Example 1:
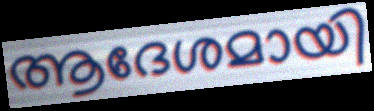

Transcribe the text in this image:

ആദേശമായി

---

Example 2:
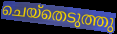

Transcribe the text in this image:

ചെയ്തെടുത്തു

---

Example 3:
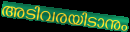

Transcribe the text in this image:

അടിവരയിടാനും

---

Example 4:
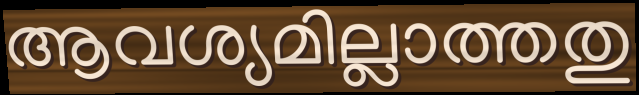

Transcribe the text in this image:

ആവശ്യമില്ലാത്തതു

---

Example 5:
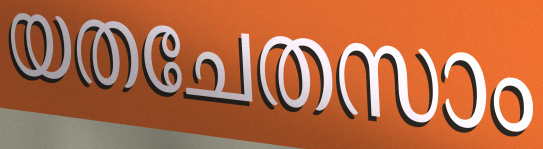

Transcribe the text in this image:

യതചേതസാം